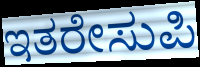
ಇತರೇಸುಪಿ